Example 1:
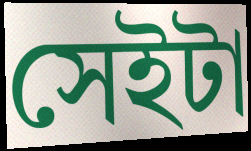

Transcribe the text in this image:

সেইটা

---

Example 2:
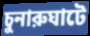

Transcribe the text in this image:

চুনারুঘাটে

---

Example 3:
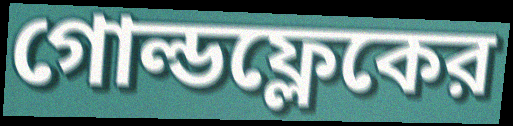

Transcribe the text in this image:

গোল্ডফ্লেকের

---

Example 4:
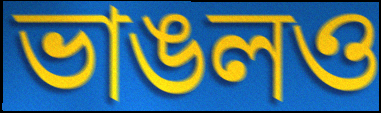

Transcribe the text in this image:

ভাঙলও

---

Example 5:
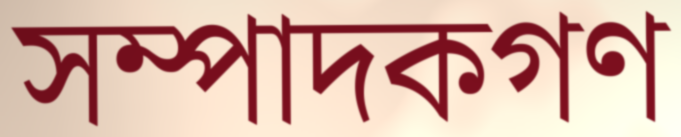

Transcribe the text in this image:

সম্পাদকগণ